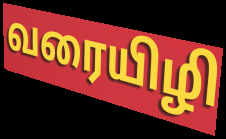
வரையிழி